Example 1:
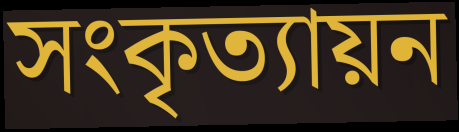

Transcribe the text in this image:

সংকৃত্যায়ন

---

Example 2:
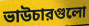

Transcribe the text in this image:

ভাউচারগুলো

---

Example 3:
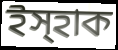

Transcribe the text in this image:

ইস্‌হাক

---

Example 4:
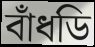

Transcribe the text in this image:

বাঁধডি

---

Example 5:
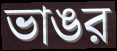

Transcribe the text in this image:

ভাঙর